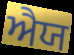
ਐਯ